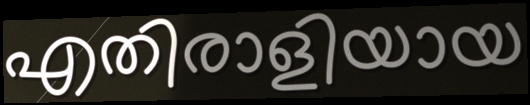
എതിരാളിയായ